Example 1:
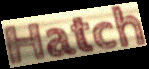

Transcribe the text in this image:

Hatch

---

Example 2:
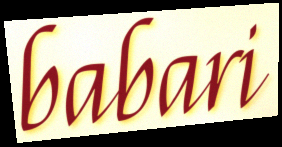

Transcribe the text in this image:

babari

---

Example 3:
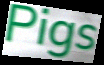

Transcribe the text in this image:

Pigs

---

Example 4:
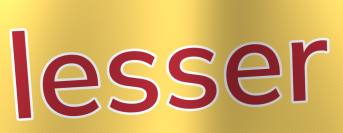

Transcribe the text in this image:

lesser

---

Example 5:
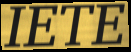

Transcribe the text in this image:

IETE